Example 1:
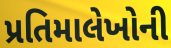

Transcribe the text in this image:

પ્રતિમાલેખોની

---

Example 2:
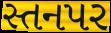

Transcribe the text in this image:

સ્તનપર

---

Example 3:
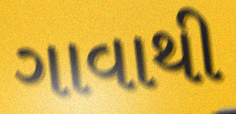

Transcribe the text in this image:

ગાવાથી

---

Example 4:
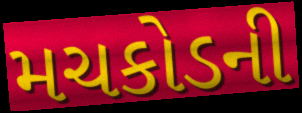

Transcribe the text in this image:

મચકોડની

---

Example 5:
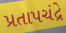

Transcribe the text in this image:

પ્રતાપચંદ્રે